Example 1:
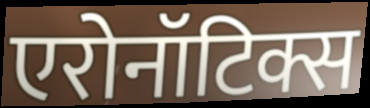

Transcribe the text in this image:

एरोनॉटिक्स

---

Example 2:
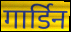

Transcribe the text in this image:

गार्डिन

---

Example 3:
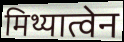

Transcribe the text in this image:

मिथ्यात्वेन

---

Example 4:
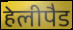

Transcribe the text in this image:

हेलीपैड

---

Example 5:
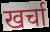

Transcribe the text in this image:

खर्चा